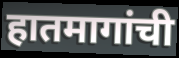
हातमागांची